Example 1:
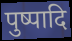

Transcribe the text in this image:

पुष्पादि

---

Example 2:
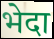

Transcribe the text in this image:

भेदा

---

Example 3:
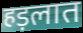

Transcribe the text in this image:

हड़लात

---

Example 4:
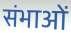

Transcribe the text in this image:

संभाओं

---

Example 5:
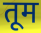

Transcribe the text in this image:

तूम